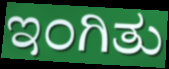
ಇಂಗಿತು